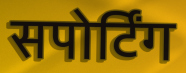
सपोर्टिंग